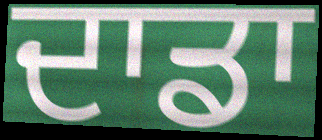
ਦਾਡਾ